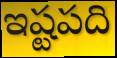
ఇష్టపది